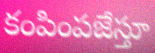
కంపింపజేస్తూ